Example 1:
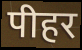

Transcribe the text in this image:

पीहर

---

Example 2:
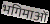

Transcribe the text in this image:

भगिमाओं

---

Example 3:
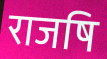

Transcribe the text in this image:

राजषि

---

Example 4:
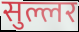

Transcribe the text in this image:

सुल्लर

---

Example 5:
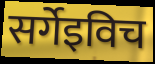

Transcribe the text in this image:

सर्गेइविच